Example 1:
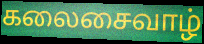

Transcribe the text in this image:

கலைசைவாழ்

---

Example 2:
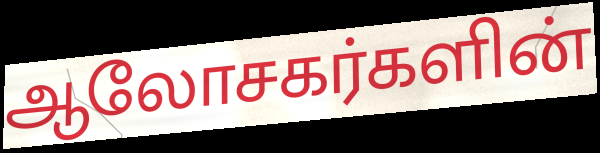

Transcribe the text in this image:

ஆலோசகர்களின்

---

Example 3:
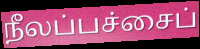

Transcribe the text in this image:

நீலப்பச்சைப்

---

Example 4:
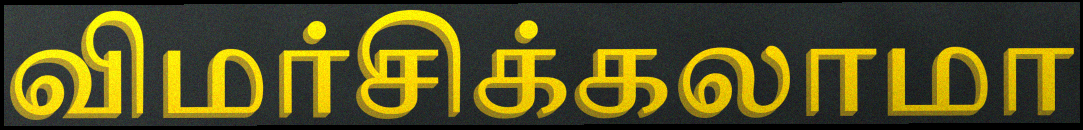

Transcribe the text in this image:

விமர்சிக்கலாமா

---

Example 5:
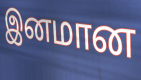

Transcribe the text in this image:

இனமான